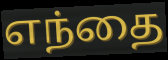
எந்தை